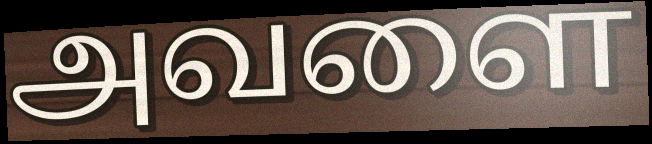
அவளை